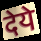
देये